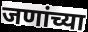
जणांच्या